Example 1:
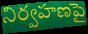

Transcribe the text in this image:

నిర్వహణపై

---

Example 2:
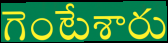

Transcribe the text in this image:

గెంటేశారు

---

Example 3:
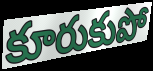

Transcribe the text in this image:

కూరుకుపో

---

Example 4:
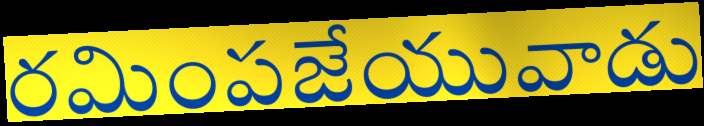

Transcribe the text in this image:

రమింపజేయువాడు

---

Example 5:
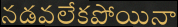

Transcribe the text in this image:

నడవలేకపోయినా